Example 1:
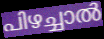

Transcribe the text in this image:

പിഴച്ചാൽ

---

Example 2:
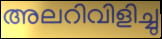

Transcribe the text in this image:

അലറിവിളിച്ചു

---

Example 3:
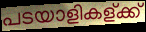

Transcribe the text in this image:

പടയാളികള്ക്ക്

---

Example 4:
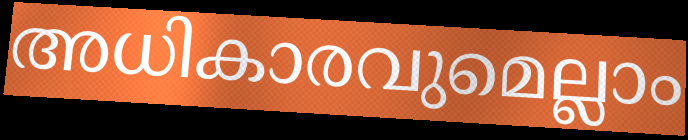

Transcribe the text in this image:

അധികാരവുമെല്ലാം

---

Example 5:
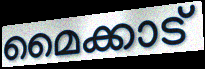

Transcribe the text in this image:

മൈക്കാട്